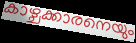
കാഴ്ചക്കാരനെയും